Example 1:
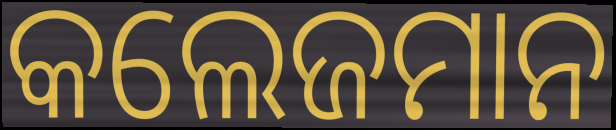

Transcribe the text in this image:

କଲେଜମାନ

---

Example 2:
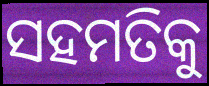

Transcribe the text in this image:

ସହମତିକୁ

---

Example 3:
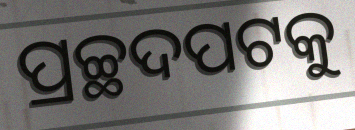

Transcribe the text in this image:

ପ୍ରଚ୍ଛଦପଟକୁ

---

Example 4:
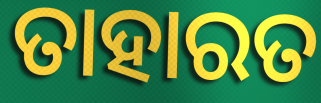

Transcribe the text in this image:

ତାହାରତ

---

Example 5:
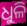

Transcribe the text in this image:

ଧୁଳି